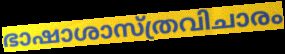
ഭാഷാശാസ്ത്രവിചാരം